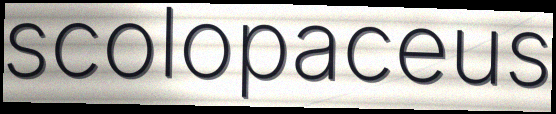
scolopaceus